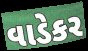
વાડેકર